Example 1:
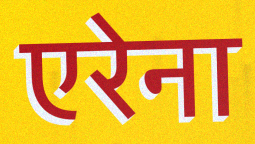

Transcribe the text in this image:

एरेना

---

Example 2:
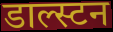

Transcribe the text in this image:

डाल्स्टन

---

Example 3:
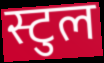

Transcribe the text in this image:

स्टुल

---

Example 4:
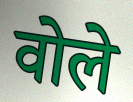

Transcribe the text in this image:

वोले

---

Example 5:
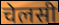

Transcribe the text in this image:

चेलसी